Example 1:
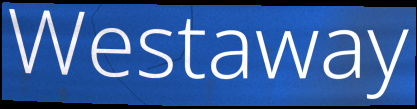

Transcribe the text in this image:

Westaway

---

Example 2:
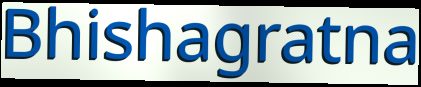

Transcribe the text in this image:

Bhishagratna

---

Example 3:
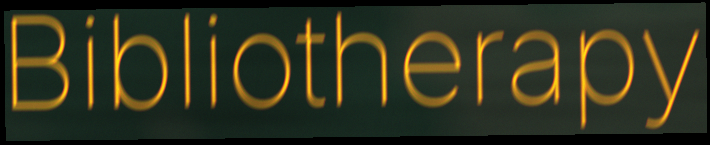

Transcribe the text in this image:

Bibliotherapy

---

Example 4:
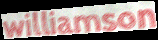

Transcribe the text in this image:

williamson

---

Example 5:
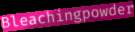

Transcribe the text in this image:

Bleachingpowder